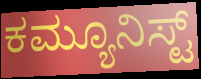
ಕಮ್ಯೂನಿಸ್ಟ್